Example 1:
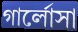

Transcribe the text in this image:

গার্লোসা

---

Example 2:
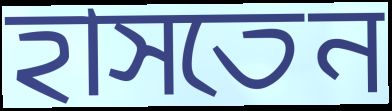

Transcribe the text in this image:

হাসতেন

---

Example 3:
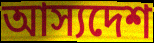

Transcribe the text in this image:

আস্যদেশ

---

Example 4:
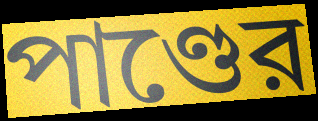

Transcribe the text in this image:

পাণ্ডের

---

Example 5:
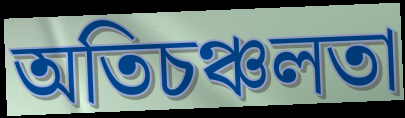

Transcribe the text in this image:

অতিচঞ্চলতা